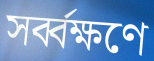
সর্ব্বক্ষণে